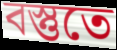
বস্তুতে